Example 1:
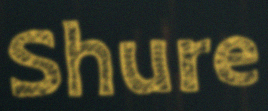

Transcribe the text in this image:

Shure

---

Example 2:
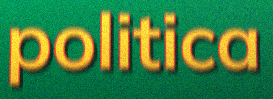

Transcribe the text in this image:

politica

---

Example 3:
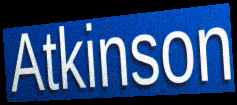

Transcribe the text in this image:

Atkinson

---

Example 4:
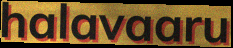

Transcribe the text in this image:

halavaaru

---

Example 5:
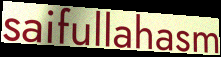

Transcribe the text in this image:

saifullahasm